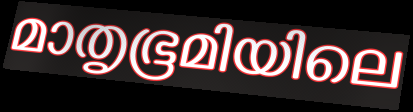
മാതൃഭൂമിയിലെ